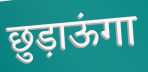
छुड़ाऊंगा